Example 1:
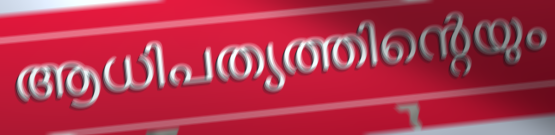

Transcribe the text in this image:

ആധിപത്യത്തിന്റെയും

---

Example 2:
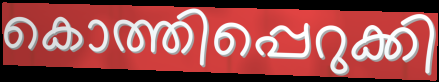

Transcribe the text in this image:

കൊത്തിപ്പെറുക്കി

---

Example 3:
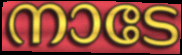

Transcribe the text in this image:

നാടേ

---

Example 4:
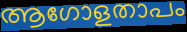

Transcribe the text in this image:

ആഗോളതാപം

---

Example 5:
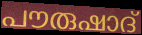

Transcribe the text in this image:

പൗരുഷാദ്